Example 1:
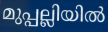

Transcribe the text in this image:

മുപ്പല്ലിയിൽ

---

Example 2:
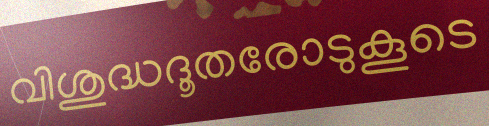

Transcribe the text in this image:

വിശുദ്ധദൂതരോടുകൂടെ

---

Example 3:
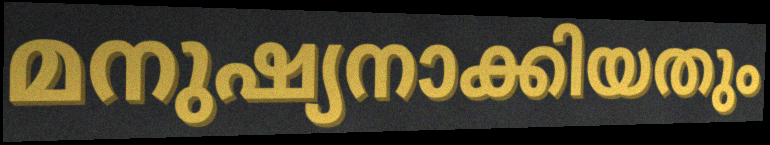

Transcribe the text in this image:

മനുഷ്യനാക്കിയതും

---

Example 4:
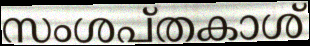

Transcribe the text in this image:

സംശപ്തകാശ്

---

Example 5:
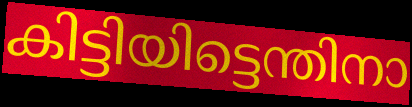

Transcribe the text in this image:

കിട്ടിയിട്ടെന്തിനാ